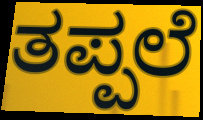
ತಪ್ಪಲೆ